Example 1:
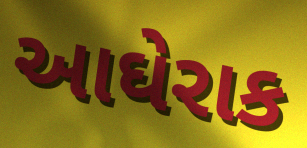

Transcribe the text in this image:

આઘેરાક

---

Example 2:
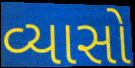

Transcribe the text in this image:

વ્યાસો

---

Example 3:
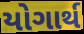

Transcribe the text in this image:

યોગાર્થ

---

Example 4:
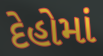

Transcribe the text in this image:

દેહોમાં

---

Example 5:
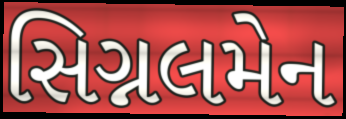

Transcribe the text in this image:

સિગ્નલમેન